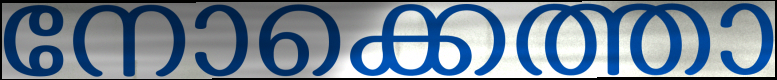
നോക്കെത്താ